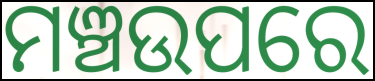
ମଞ୍ଚଉପରେ